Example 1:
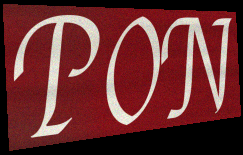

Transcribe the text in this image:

PON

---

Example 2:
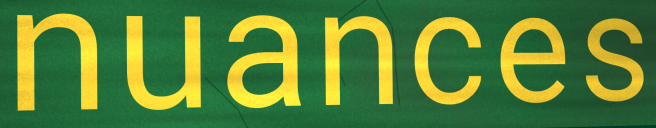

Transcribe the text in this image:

nuances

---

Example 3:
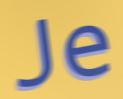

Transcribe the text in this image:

Je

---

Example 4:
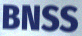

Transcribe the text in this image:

BNSS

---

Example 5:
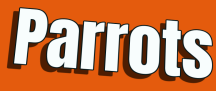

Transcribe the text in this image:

Parrots